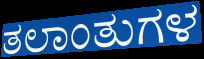
ತಲಾಂತುಗಳ